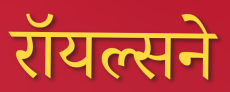
रॉयल्सने